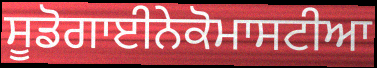
ਸੂਡੋਗਾਈਨੇਕੋਮਾਸਟੀਆ